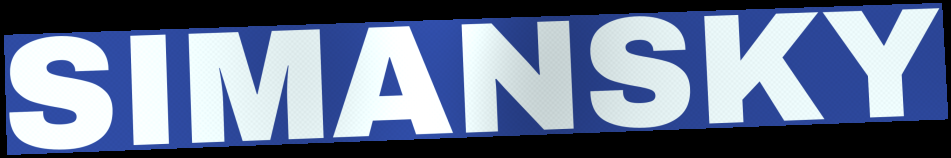
SIMANSKY